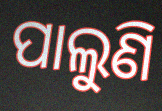
ପାଲୁଣି